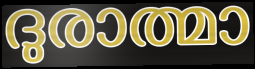
ദുരാത്മാ